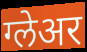
ग्लेअर